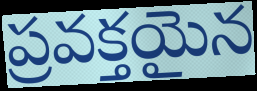
ప్రవక్తయైన